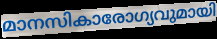
മാനസികാരോഗ്യവുമായി